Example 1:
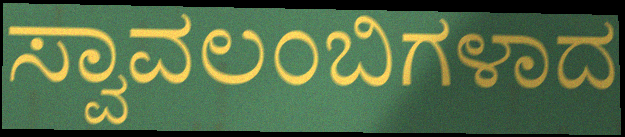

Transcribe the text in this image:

ಸ್ವಾವಲಂಬಿಗಳಾದ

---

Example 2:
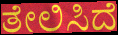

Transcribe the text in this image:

ತೇಲಿಸಿದೆ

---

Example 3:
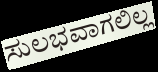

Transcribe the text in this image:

ಸುಲಭವಾಗಲಿಲ್ಲ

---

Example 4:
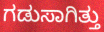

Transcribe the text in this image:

ಗಡುಸಾಗಿತ್ತು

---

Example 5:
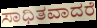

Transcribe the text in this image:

ಸಾಧಿತವಾದರೆ